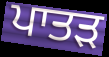
ਪਾਤੜ